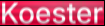
Koester